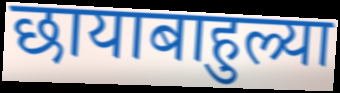
छायाबाहुल्या